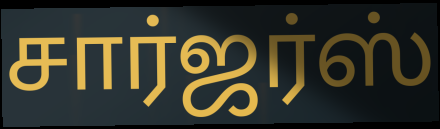
சார்ஜர்ஸ்